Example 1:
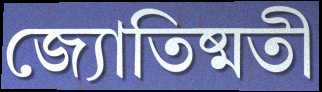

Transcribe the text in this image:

জ্যোতিষ্মতী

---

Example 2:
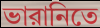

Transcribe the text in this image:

ভারানিতে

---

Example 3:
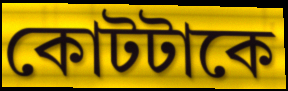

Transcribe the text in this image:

কোটটাকে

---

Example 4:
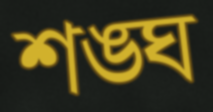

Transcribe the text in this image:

শঙ্ঘ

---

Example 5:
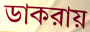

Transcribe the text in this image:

ডাকরায়